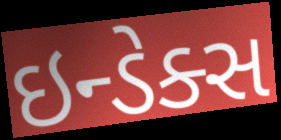
ઇન્ડેક્સ